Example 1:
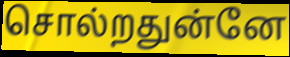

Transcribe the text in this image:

சொல்றதுன்னே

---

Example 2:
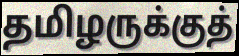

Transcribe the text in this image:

தமிழருக்குத்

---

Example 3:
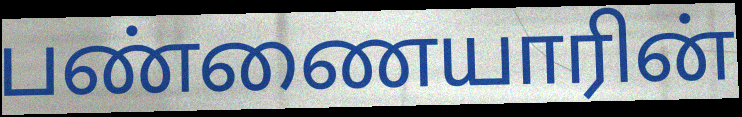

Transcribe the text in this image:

பண்ணையாரின்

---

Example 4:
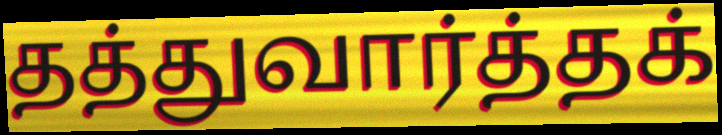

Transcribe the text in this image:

தத்துவார்த்தக்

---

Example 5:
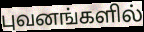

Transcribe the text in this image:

புவனங்களில்